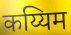
कय्यिम